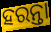
ହରନ୍ତା